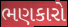
ભણકારો